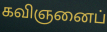
கவிஞனைப்